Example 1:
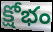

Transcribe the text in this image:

క్షోభం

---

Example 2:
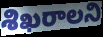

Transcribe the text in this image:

శిఖరాలని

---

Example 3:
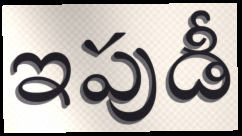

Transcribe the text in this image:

ఇపుడీ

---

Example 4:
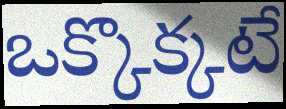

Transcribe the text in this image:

ఒక్కొక్కటే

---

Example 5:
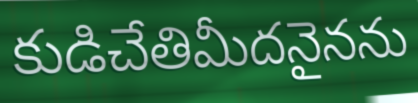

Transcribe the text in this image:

కుడిచేతిమీదనైనను